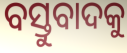
ବସ୍ତୁବାଦକୁ